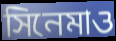
সিনেমাও